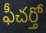
ఫీచర్తో